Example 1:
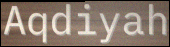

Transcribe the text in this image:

Aqdiyah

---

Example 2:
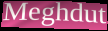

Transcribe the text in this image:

Meghdut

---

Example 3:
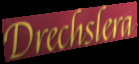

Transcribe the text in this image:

Drechslera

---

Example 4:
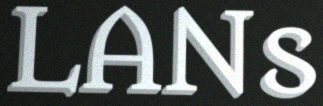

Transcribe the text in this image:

LANs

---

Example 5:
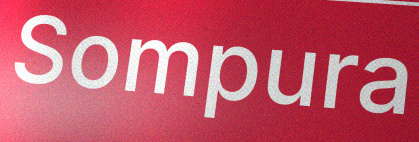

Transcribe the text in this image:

Sompura